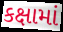
કક્ષામાં